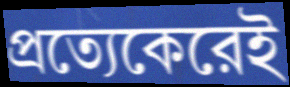
প্রত্যেকেরেই